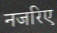
नजरिए